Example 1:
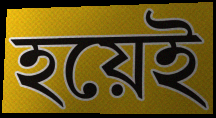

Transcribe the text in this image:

হয়েই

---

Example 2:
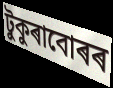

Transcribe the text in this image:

টুকুৰাবোৰৰ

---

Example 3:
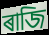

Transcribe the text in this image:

ৰাজি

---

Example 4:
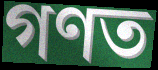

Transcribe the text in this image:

গণত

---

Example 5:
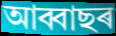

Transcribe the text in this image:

আব্বাছৰ